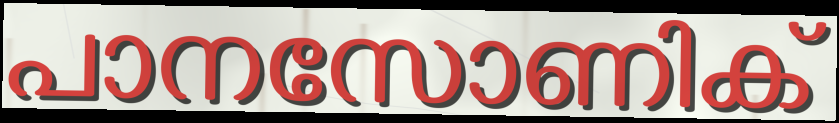
പാനസോണിക്